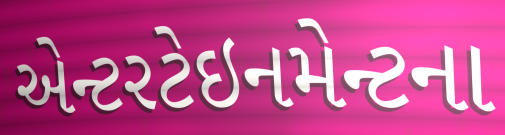
એન્ટરટેઇનમેન્ટના